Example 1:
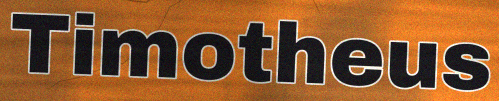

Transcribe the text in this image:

Timotheus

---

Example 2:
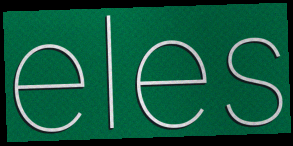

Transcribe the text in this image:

eles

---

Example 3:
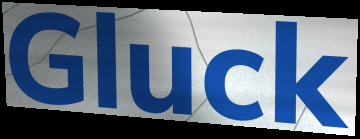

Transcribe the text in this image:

Gluck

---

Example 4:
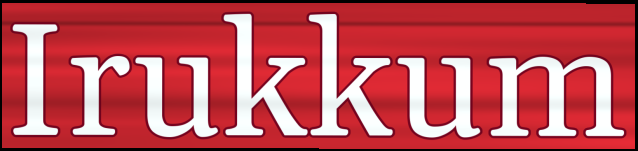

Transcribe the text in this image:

Irukkum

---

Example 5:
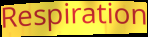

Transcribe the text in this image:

Respiration